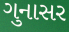
ગુનાસર